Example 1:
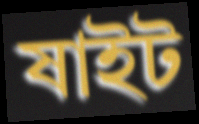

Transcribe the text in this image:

ষাইট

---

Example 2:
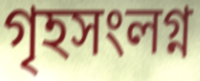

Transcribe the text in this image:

গৃহসংলগ্ন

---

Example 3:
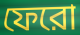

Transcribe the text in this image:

ফেরো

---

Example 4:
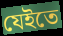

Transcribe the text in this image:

যেইতে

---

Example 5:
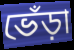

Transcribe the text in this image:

ভেঁড়া